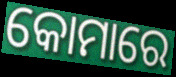
କୋମାରେ